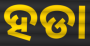
ହଡା